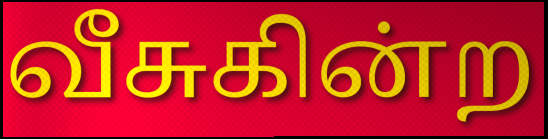
வீசுகின்ற